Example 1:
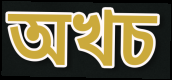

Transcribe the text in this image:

অখচ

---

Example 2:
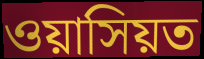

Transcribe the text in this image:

ওয়াসিয়ত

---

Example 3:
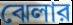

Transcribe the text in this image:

ঝেলার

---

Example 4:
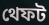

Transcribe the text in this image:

থেফট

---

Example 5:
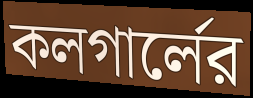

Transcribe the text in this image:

কলগার্লের